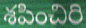
శపించిరి